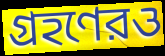
গ্রহণেরও